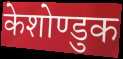
केशोण्डुक